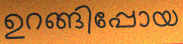
ഉറങ്ങിപ്പോയ